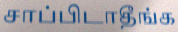
சாப்பிடாதீங்க